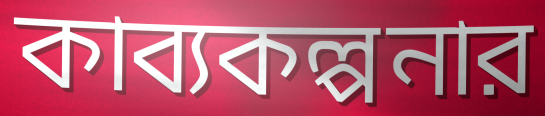
কাব্যকল্পনার